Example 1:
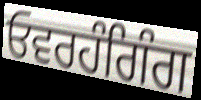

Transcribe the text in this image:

ਓਵਰਹੰਗਿੰਗ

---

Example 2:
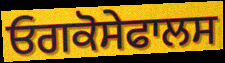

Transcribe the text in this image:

ਓਗਕੋਸੇਫਾਲਸ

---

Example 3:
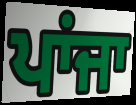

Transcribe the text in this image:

ਪਾਂਜਾ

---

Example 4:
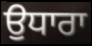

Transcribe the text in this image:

ਉਧਾਰਾ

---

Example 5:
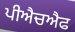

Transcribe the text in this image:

ਪੀਐਚਐਫ